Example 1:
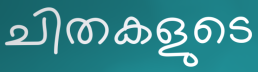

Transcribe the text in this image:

ചിതകളുടെ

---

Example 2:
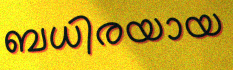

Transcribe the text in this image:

ബധിരയായ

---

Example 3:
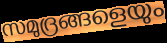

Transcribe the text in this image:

സമുദ്രങ്ങളെയും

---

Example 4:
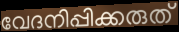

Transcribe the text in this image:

വേദനിപ്പിക്കരുത്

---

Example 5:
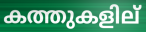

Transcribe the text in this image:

കത്തുകളില്